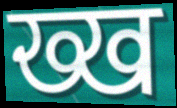
ख्ख